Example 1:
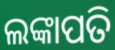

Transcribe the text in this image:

ଲଙ୍କାପତି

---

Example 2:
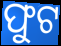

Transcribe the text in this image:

ଫୁଟ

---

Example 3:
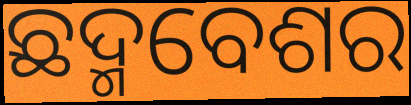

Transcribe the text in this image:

ଛଦ୍ମବେଶର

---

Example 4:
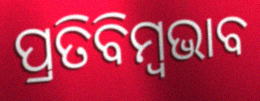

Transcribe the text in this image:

ପ୍ରତିବିମ୍ବଭାବ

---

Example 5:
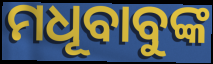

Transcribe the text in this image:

ମଧୂବାବୁଙ୍କ